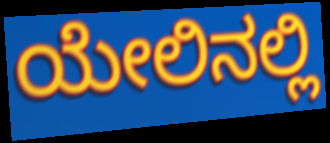
ಯೇಲಿನಲ್ಲಿ